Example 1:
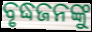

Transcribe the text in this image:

ବୃଦ୍ଧଜନଙ୍କୁ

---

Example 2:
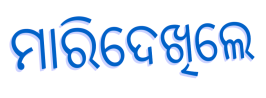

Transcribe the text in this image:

ମାରିଦେଖିଲେ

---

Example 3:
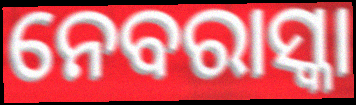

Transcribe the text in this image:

ନେବରାସ୍କା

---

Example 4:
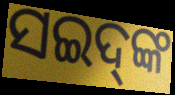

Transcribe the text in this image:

ସଇଦ୍‌ଙ୍କ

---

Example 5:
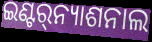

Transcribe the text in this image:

ଇଣ୍ଟର୍‌ନ୍ୟାଶନାଲ